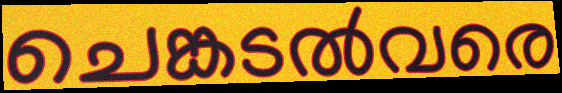
ചെങ്കടൽവരെ